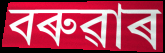
বৰুৱাৰ